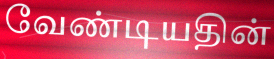
வேண்டியதின்